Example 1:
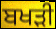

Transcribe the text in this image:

ਬਖੜੀ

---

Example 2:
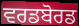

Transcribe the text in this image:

ਵਰਡਬੋਰਡ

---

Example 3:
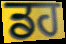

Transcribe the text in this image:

ਡਹ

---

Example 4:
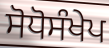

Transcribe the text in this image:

ਸੋਧੋਸੰਖੇਪ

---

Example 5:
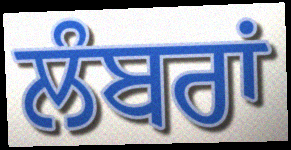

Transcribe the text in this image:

ਲੰਬਰਾਂ